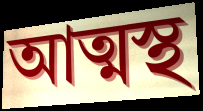
আত্মস্থ